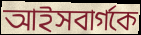
আইসবার্গকে